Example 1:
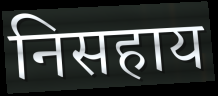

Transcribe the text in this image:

निसहाय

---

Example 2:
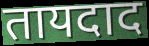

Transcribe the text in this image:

तायदाद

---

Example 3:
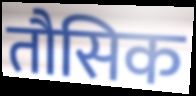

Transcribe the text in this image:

तौसिक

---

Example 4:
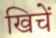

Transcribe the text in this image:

खिचें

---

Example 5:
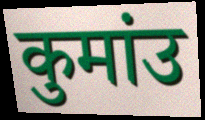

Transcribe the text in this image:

कुमांउ